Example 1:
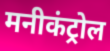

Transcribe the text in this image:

मनीकंट्रोल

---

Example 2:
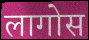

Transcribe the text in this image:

लागोस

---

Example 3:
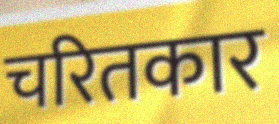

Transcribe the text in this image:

चरितकार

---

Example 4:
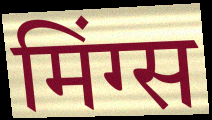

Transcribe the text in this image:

मिंग्स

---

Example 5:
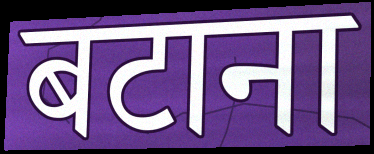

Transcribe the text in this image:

बटाना